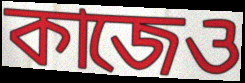
কাজেও